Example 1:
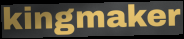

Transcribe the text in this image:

kingmaker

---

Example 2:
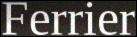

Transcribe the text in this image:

Ferrier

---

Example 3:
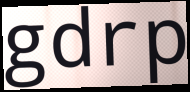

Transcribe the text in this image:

gdrp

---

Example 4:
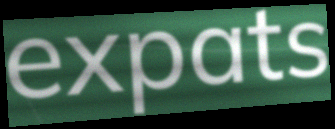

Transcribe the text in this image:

expats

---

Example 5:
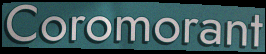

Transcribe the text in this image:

Coromorant